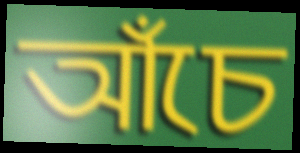
আঁচে